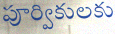
పూర్వికులకు